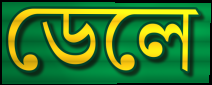
ডেলে